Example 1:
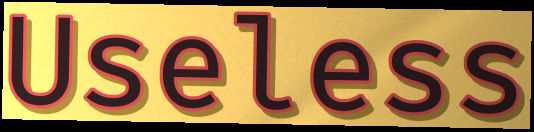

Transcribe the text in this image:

Useless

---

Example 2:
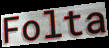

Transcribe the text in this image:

Folta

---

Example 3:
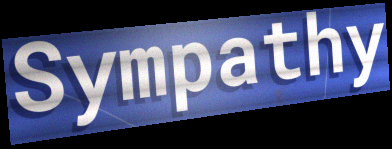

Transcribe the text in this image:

Sympathy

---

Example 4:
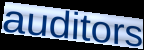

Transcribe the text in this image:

auditors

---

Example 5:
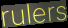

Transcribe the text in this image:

rulers